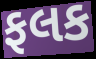
ફલક